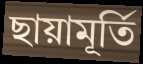
ছায়ামূর্তি